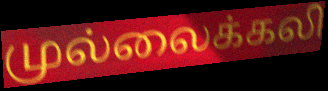
முல்லைக்கலி